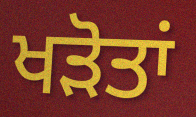
ਖੜੋਤਾਂ